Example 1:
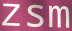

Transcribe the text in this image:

zsm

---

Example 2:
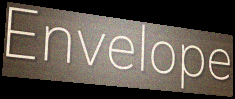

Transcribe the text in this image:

Envelope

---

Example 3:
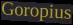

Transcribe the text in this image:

Goropius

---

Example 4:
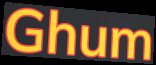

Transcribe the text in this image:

Ghum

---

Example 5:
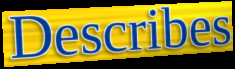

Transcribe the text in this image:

Describes